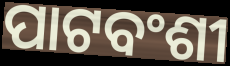
ପାଟବଂଶୀ